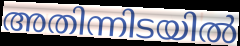
അതിന്നിടയിൽ